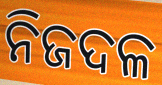
ନିଜଦଳ